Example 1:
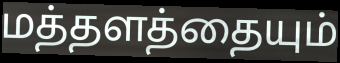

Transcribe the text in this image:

மத்தளத்தையும்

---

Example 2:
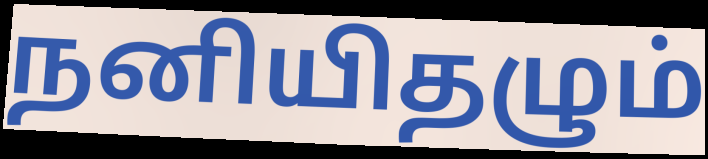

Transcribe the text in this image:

நனியிதழும்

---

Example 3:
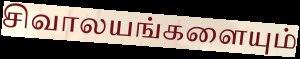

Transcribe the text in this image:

சிவாலயங்களையும்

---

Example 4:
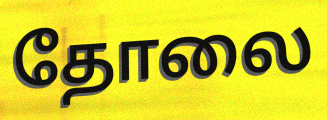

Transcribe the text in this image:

தோலை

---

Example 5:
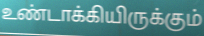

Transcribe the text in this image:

உண்டாக்கியிருக்கும்